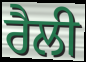
ਰੈਲੀ